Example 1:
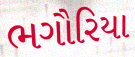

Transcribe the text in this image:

ભગૌરિયા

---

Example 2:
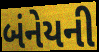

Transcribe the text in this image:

બંનેયની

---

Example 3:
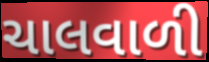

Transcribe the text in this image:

ચાલવાળી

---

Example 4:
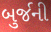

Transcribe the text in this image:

બુર્જની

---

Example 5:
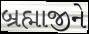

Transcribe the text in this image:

બ્રહ્માજીને